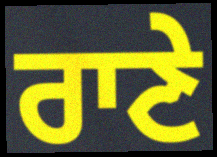
ਰਾਣੇ